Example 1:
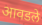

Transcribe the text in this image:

आवडले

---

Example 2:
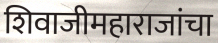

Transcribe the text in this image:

शिवाजीमहाराजांचा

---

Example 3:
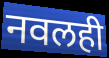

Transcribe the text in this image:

नवलही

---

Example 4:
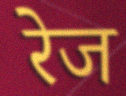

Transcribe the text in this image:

रेज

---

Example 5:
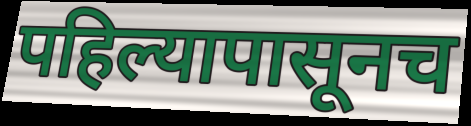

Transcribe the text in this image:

पहिल्यापासूनच